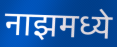
नाझमध्ये